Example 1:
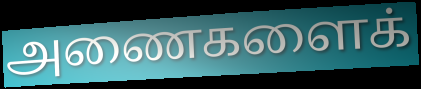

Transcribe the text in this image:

அணைகளைக்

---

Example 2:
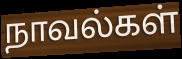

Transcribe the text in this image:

நாவல்கள்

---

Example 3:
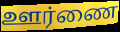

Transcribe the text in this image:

ஊர்ணை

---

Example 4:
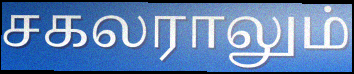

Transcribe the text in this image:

சகலராலும்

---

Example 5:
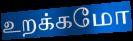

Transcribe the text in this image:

உறக்கமோ